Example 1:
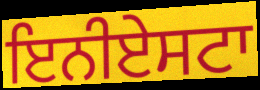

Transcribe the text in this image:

ਇਨੀਏਸਟਾ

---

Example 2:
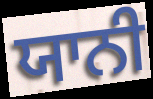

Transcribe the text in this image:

ਯਾਨੀ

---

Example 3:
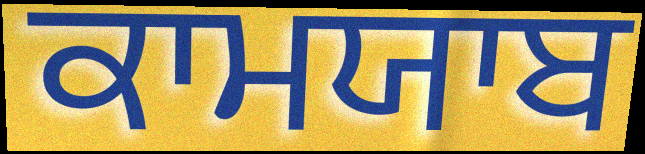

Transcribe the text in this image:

ਕਾਮਯਾਬ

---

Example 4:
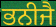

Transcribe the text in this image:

ਭਨੀਜੈ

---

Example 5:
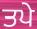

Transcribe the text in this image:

ਤਪੇ